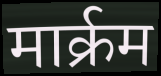
मार्क्रम